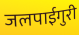
जलपाईगुरी